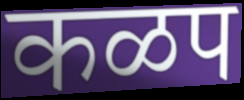
कळप